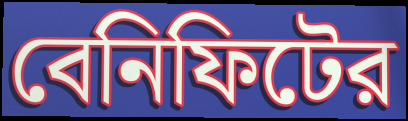
বেনিফিটের